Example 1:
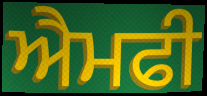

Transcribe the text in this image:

ਐਮਫੀ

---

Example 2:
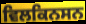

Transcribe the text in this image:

ਵਿਲਕਿਨਸਨ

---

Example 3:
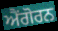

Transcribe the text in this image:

ਐਂਗੋਰਨ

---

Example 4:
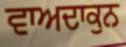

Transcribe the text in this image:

ਵਾਅਦਾਕੁਨ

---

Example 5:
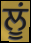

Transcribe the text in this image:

ਲੂਂ